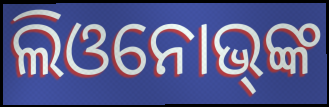
ଲିଓନୋଭ୍‌ଙ୍କ